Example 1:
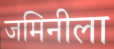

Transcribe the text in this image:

जमिनीला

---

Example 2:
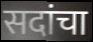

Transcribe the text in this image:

सदांचा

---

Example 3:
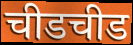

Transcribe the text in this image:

चीडचीड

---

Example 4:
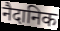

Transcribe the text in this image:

नैदानिक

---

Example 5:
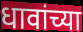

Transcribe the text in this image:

धावांच्या